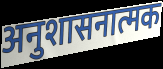
अनुशासनात्मक